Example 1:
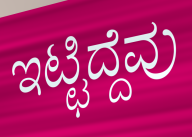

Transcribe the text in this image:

ಇಟ್ಟಿದ್ದೆವು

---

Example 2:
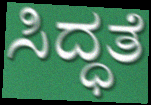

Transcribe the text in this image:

ಸಿದ್ಧತೆ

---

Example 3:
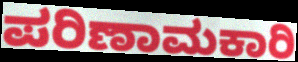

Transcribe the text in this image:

ಪರಿಣಾಮಕಾರಿ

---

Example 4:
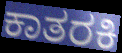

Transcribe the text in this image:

ಕಾತರಕಿ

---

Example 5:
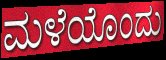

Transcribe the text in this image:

ಮಳೆಯೊಂದು